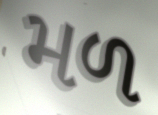
મળ